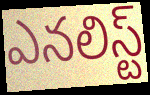
ఎనలిస్ట్